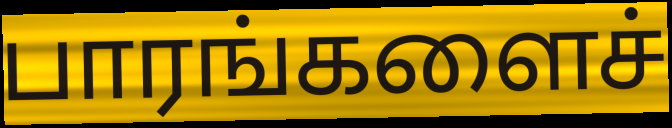
பாரங்களைச்